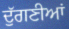
ਦੁੱਗਣੀਆਂ